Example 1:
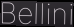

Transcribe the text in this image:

Bellini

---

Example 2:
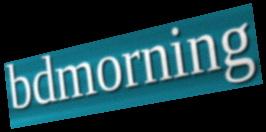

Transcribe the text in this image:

bdmorning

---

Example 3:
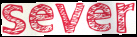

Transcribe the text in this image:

sever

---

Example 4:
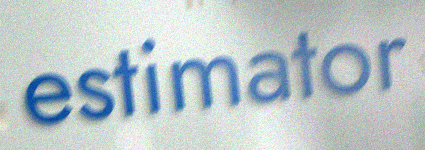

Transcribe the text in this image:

estimator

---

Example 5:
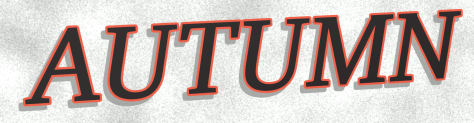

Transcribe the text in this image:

AUTUMN